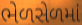
ભેળસેળમાં